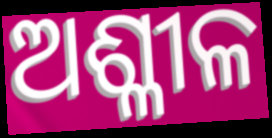
ଅଶ୍ଳୀଳ